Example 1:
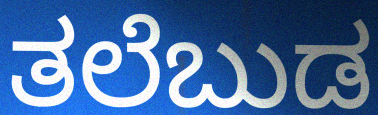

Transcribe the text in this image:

ತಲೆಬುಡ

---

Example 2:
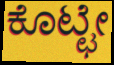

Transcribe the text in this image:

ಕೊಟ್ಟೇ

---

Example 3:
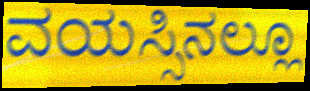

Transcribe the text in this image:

ವಯಸ್ಸಿನಲ್ಲೂ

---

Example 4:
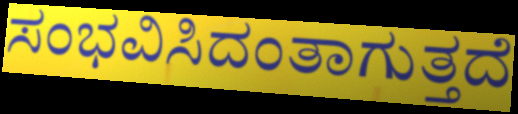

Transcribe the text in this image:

ಸಂಭವಿಸಿದಂತಾಗುತ್ತದೆ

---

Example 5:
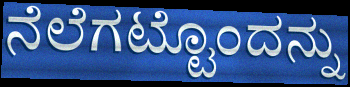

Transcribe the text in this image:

ನೆಲೆಗಟ್ಟೊಂದನ್ನು